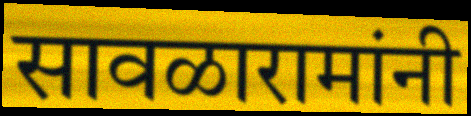
सावळारामांनी